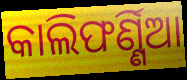
କାଲିଫର୍ଣ୍ଣିଆ